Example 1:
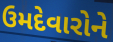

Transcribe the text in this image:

ઉમદેવારોને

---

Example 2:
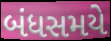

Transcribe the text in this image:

બંધસમયે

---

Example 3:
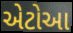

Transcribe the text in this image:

એટોઆ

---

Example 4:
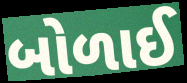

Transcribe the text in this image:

બોળાઈ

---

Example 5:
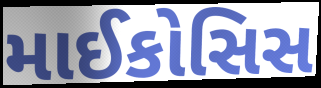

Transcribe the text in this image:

માઈકોસિસ